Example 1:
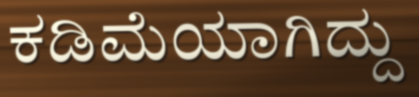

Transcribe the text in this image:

ಕಡಿಮೆಯಾಗಿದ್ದು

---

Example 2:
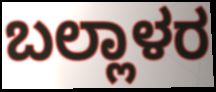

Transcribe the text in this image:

ಬಲ್ಲಾಳರ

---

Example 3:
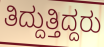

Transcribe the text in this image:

ತಿದ್ದುತ್ತಿದ್ದರು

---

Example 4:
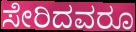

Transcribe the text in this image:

ಸೇರಿದವರೂ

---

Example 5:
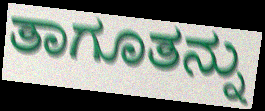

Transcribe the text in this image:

ತಾಗೂತನ್ನು